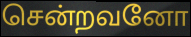
சென்றவனோ